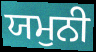
ਯਮੁਨੀ